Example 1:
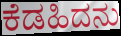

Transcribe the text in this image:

ಕೆಡಹಿದನು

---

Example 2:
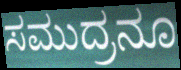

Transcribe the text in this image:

ಸಮುದ್ರನೂ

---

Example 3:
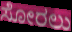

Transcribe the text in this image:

ಸೋರಲು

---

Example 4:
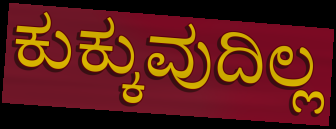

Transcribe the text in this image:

ಕುಕ್ಕುವುದಿಲ್ಲ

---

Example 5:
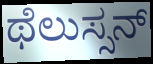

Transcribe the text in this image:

ಥೆಲುಸ್ಸನ್